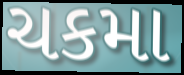
ચકમા